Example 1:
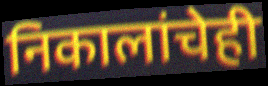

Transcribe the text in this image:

निकालांचेही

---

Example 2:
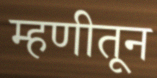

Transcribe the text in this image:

म्हणीतून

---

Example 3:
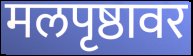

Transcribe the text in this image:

मलपृष्ठावर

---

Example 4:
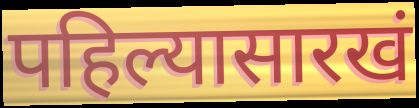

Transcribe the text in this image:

पहिल्यासारखं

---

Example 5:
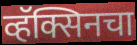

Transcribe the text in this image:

व्हॅक्सिनचा